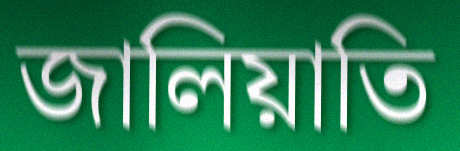
জালিয়াতি